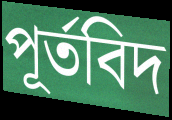
পূর্তবিদ